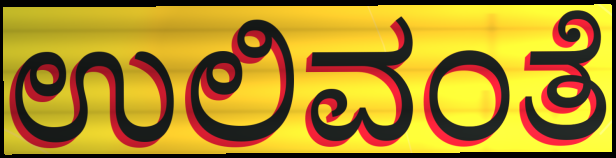
ಉಲಿವಂತೆ